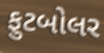
ફુટબોલર